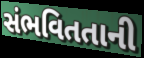
સંભવિતતાની